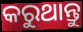
କରୁଥାନ୍ତୁ